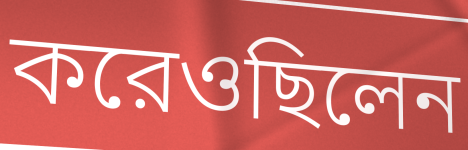
করেওছিলেন